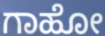
ಗಾಹೋ